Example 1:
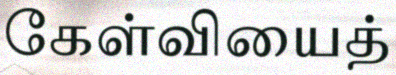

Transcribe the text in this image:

கேள்வியைத்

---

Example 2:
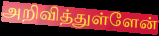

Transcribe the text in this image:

அறிவித்துள்ளேன்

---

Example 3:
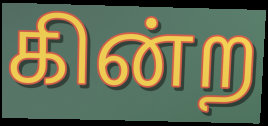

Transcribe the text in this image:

கின்ற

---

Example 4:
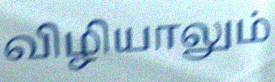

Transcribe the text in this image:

விழியாலும்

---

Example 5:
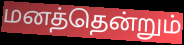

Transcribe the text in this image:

மனத்தென்றும்